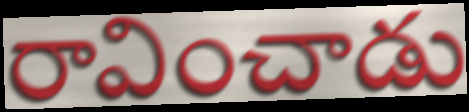
రావించాడు